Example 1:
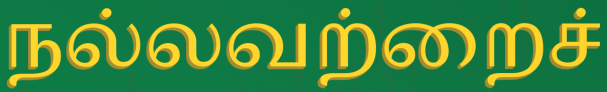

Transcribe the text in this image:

நல்லவற்றைச்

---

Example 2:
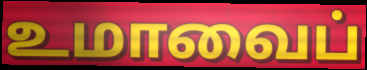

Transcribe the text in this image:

உமாவைப்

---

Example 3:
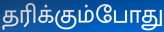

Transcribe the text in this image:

தரிக்கும்போது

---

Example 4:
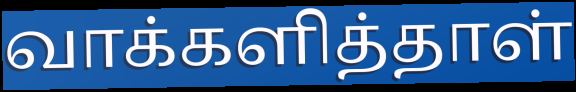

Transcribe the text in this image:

வாக்களித்தாள்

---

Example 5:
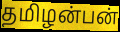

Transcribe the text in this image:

தமிழன்பன்